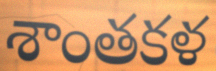
శాంతకళ